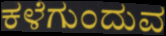
ಕಳೆಗುಂದುವ